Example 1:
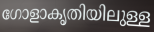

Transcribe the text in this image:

ഗോളാകൃതിയിലുള്ള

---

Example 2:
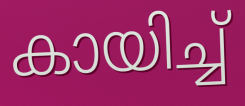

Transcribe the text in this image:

കായിച്ച്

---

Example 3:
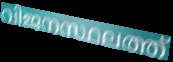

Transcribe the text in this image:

വിജനസ്ഥലത്ത്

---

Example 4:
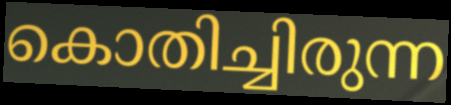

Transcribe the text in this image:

കൊതിച്ചിരുന്ന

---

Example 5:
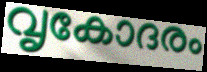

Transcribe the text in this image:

വൃകോദരം